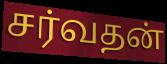
சர்வதன்